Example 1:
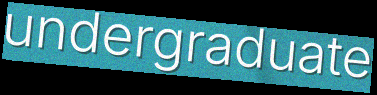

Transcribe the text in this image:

undergraduate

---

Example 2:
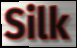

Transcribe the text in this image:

Silk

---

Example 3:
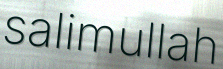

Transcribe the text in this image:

salimullah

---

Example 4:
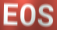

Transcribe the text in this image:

EOS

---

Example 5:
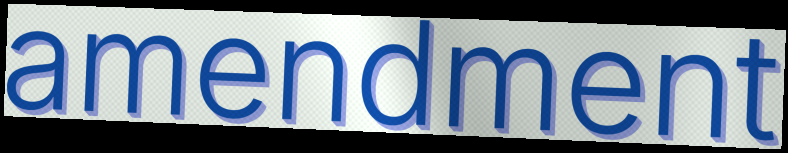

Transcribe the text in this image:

amendment